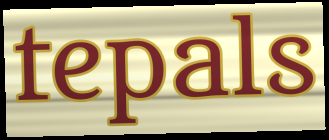
tepals